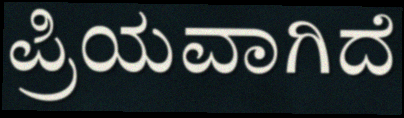
ಪ್ರಿಯವಾಗಿದೆ